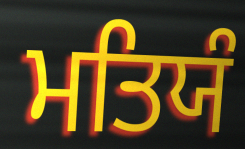
ਮਤਿਯੰ